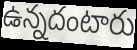
ఉన్నదంటారు